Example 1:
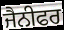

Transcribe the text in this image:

ਜੈਨੀਫਰ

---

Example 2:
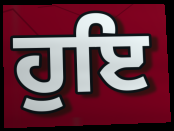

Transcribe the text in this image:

ਹੁਇ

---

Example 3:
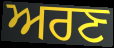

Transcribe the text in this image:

ਅਰਣ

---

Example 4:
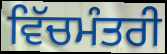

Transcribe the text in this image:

ਵਿੱਚਮੰਤਰੀ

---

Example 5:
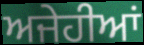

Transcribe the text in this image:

ਅਜੇਹੀਆਂ